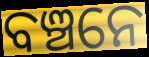
ବଞ୍ଚନେ